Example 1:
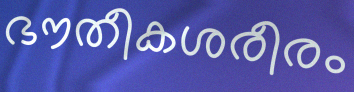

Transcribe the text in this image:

ഭൗതീകശരീരം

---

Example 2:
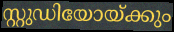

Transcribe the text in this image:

സ്റ്റുഡിയോയ്ക്കും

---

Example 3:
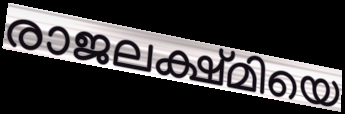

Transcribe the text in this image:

രാജലക്ഷ്മിയെ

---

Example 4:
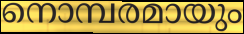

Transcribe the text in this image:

നൊമ്പരമായും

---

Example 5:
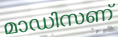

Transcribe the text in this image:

മാഡിസണ്